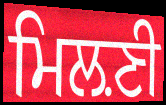
ਮਿਲ਼ਣੀ